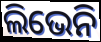
ଲିଭେନି